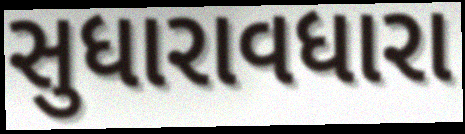
સુધારાવધારા